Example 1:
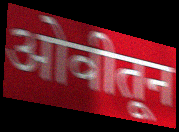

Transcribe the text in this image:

ओवीतून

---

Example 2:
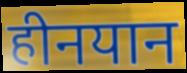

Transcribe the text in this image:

हीनयान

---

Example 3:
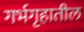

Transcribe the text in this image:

गर्भगृहातील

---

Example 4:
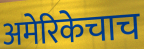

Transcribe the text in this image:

अमेरिकेचाच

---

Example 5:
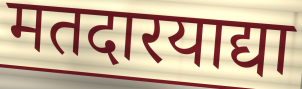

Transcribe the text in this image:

मतदारयाद्या